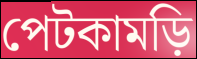
পেটকামড়ি